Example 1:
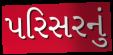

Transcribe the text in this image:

પરિસરનું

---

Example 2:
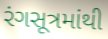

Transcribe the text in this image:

રંગસૂત્રમાંથી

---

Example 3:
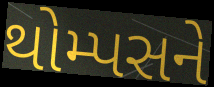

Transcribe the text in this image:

થોમ્પસને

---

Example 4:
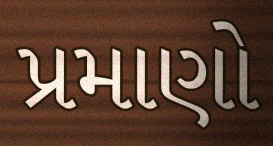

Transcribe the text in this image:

પ્રમાણો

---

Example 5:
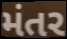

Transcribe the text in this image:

મંતર